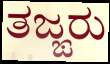
ತಜ್ಙರು